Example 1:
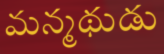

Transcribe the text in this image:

మన్మథుడు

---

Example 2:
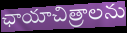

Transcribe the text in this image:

ఛాయాచిత్రాలను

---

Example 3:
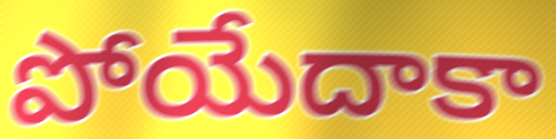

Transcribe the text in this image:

పోయేదాకా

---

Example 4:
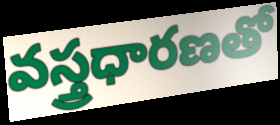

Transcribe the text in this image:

వస్త్రధారణతో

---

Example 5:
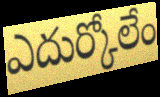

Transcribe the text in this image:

ఎదుర్కోలేం